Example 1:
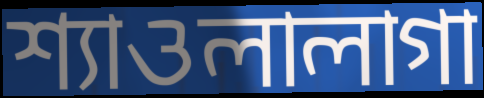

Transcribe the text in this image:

শ্যাওলালাগা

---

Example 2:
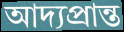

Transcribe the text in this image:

আদ্যপ্রান্ত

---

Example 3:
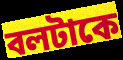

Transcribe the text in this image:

বলটাকে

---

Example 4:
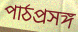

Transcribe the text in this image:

পাঠপ্রসঙ্গ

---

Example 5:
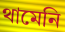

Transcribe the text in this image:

থামেনি